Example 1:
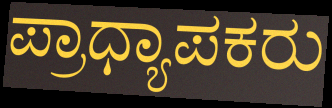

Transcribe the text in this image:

ಪ್ರಾಧ್ಯಾಪಕರು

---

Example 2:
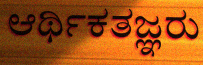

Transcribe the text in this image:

ಆರ್ಥಿಕತಜ್ಞರು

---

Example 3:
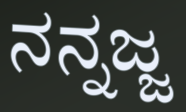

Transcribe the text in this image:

ನನ್ನಜ್ಜ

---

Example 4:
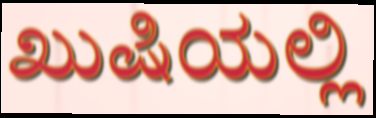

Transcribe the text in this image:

ಖುಷಿಯಲ್ಲಿ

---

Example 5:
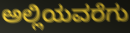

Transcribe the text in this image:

ಅಲ್ಲಿಯವರೆಗು